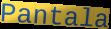
Pantala